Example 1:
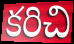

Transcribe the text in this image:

కరిచి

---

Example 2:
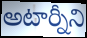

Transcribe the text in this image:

అటార్నీని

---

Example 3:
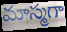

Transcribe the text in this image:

మాస్మగా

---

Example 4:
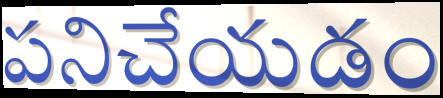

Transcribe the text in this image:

పనిచేయడం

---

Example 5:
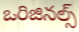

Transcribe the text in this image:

ఒరిజినల్స్